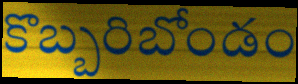
కొబ్బరిబోండం